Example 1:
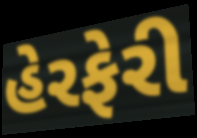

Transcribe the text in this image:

હેરફેરી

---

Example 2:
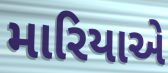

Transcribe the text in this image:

મારિયાએ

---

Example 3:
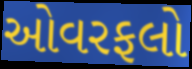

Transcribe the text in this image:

ઓવરફલો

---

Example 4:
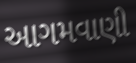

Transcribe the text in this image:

આગમવાણી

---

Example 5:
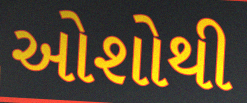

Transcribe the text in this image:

ઓશોથી